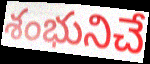
శంభునిచే